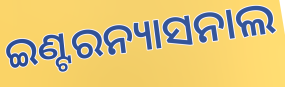
ଇଣ୍ଟରନ୍ୟାସନାଲ